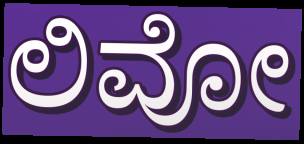
ಲಿವೋ